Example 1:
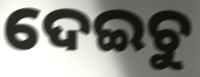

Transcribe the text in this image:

ଦେଇଚୁ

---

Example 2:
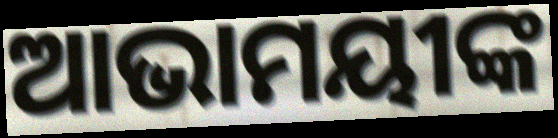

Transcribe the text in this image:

ଆଭାମୟୀଙ୍କ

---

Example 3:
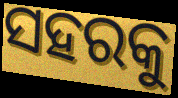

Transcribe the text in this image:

ସହରକୁ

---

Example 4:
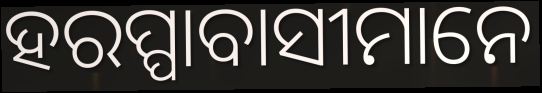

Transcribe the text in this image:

ହରପ୍ପାବାସୀମାନେ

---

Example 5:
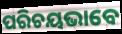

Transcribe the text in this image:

ପରିଚୟଭାବେ